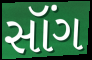
સૉંગ